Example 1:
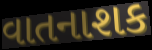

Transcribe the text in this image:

વાતનાશક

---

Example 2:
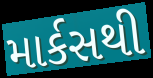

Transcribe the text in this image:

માર્કસથી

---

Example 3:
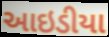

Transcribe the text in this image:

આઇડીયા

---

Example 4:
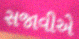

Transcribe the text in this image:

સજાવીએ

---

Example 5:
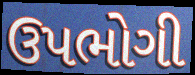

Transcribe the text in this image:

ઉપભોગી